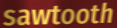
sawtooth